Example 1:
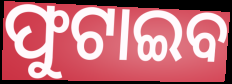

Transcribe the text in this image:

ଫୁଟାଇବ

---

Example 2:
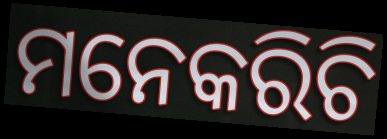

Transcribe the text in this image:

ମନେକରିଚି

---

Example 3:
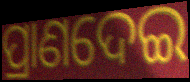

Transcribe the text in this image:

ପ୍ରାଣଦେଇ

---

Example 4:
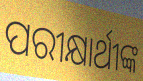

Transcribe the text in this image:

ପରୀକ୍ଷାର୍ଥୀଙ୍କ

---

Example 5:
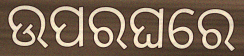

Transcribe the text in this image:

ଉପରଘରେ